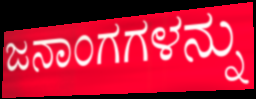
ಜನಾಂಗಗಳನ್ನು